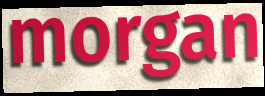
morgan